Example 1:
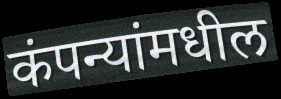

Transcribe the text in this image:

कंपन्यांमधील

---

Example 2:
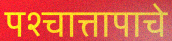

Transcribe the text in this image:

पश्चात्तापाचे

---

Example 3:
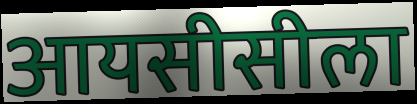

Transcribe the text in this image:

आयसीसीला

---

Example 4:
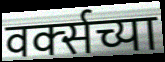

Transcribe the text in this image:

वर्क्‍सच्या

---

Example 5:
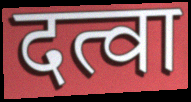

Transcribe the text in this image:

दत्वा